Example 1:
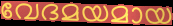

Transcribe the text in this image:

വേദമയമായ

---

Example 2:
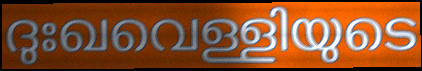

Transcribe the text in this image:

ദുഃഖവെള്ളിയുടെ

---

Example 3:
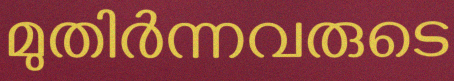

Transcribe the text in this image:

മുതിർന്നവരുടെ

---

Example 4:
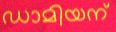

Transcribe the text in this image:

ഡാമിയന്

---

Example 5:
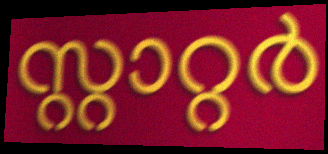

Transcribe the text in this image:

സ്റ്റാറ്റർ